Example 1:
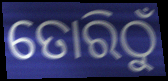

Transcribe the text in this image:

ତୋରିଠୁଁ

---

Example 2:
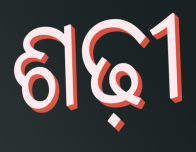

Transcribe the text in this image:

ଶଢ଼ୀ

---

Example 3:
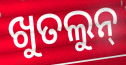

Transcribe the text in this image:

ଖୁତଲୁନ୍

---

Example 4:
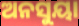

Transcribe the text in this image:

ଅନସୁୟା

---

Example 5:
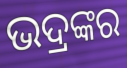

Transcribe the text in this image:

ଭଦ୍ରଙ୍କର